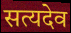
सत्यदेव